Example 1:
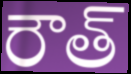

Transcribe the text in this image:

రౌత్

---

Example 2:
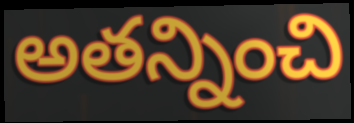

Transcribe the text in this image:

అతన్నించి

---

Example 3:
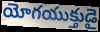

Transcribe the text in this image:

యోగయుక్తుడై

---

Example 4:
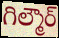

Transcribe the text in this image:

గిల్మౌర్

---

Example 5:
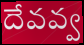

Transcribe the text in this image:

దేవవ్వ